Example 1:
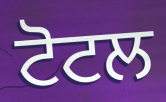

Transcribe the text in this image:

ਟੋਟਲ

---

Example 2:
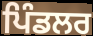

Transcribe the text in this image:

ਪਿੰਡਲਰ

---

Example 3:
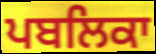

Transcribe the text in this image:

ਪਬਲਿਕਾ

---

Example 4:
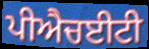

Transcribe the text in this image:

ਪੀਐਚਈਟੀ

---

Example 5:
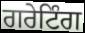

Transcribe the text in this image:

ਗਰੇਟਿੰਗ